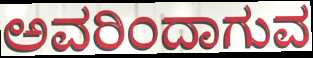
ಅವರಿಂದಾಗುವ